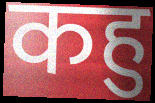
कहु